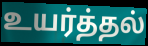
உயர்த்தல்